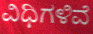
ವಿಧಿಗಳಿವೆ